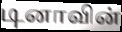
டினாவின்